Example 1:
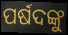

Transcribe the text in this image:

ପର୍ଷଦଙ୍କୁ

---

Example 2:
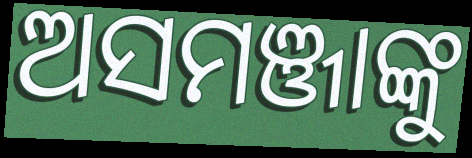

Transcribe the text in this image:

ଅସମଞ୍ଜାଙ୍କୁ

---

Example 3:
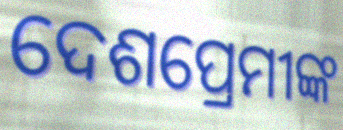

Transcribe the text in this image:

ଦେଶପ୍ରେମୀଙ୍କ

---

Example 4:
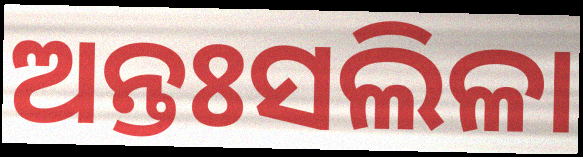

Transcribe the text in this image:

ଅନ୍ତଃସଲିଳା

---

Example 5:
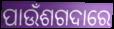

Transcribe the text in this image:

ପାଉଁଶଗଦାରେ